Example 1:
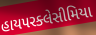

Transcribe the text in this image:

હાયપરક્લેસીમિયા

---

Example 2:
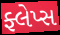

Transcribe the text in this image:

ફ્લેપ્સ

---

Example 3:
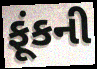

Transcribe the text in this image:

ફૂંકની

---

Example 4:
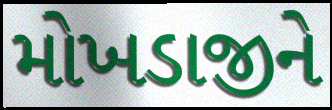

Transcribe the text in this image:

મોખડાજીને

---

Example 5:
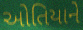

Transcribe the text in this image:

ઓતિયાને